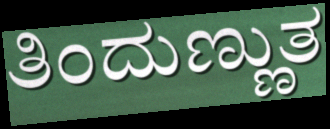
ತಿಂದುಣ್ಣುತ